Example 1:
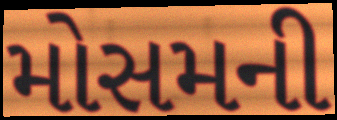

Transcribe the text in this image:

મોસમની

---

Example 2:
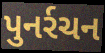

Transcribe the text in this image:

પુનર્રચન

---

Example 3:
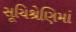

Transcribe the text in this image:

સૂચિશ્રેણિમાં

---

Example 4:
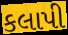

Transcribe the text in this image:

કલાપી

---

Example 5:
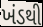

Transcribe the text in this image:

ખંડથી